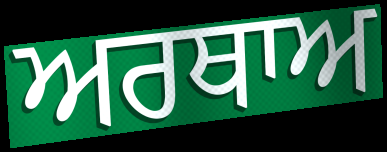
ਅਰਥਾਅ